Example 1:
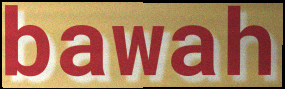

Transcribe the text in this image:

bawah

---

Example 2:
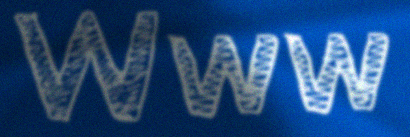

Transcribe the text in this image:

Www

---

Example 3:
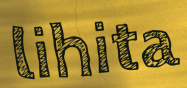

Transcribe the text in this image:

lihita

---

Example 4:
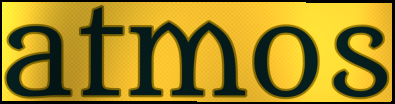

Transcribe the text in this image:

atmos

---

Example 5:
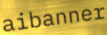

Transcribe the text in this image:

aibanner